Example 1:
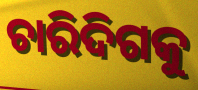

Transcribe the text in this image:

ଚାରିଦିଗକୁ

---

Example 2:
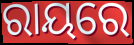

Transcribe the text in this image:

ରାୟରେ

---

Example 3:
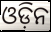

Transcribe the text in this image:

ଓଡ଼ିନ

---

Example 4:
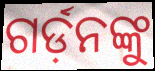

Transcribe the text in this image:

ଗର୍ଡ଼ନଙ୍କୁ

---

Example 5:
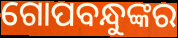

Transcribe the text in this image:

ଗୋପବନ୍ଧୁଙ୍କର